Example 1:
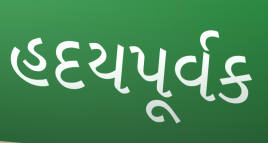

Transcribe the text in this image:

હદયપૂર્વક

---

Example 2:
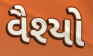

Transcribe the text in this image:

વૈશ્યો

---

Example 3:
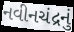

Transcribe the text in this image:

નવીનચંદ્રનું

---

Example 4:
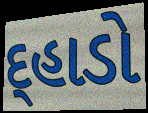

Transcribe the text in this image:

દ્હાડો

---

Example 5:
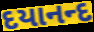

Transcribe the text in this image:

દયાનન્દ